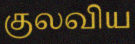
குலவிய